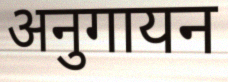
अनुगायन